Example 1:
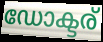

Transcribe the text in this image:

ഡോക്ടര്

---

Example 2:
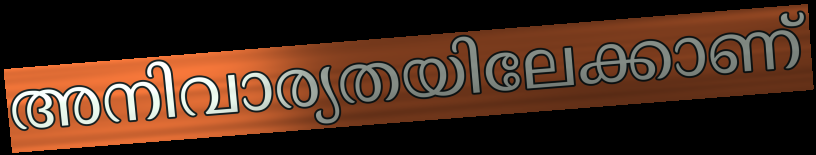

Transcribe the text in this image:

അനിവാര്യതയിലേക്കാണ്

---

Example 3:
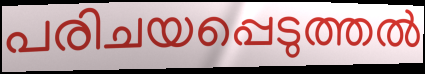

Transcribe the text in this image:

പരിചയപ്പെടുത്തൽ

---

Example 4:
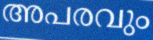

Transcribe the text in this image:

അപരവും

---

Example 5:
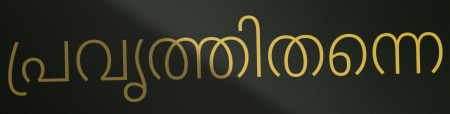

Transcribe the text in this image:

പ്രവൃത്തിതന്നെ